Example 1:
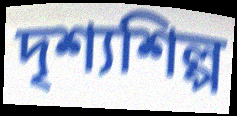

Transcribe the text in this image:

দৃশ্যশিল্প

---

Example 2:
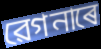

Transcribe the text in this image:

ৱেগনাৰে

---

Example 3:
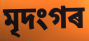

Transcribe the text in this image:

মৃদংগৰ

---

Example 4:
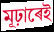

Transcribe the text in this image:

মূঢ়াৰেই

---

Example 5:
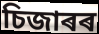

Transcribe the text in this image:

চিজাৰৰ